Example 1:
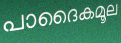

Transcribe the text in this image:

പാദൈകമൂല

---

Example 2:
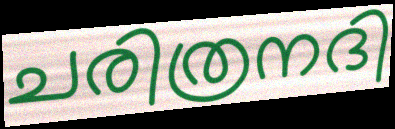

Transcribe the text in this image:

ചരിത്രനദി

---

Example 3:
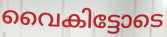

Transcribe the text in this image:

വൈകിട്ടോടെ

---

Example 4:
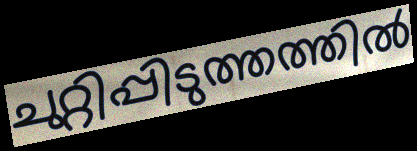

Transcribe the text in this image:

ചുറ്റിപ്പിടുത്തത്തിൽ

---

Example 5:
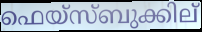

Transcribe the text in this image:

ഫെയ്സ്ബുക്കില്